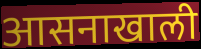
आसनाखाली